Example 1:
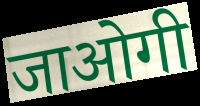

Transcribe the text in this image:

जाओगी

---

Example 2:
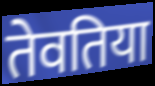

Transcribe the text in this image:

तेवतिया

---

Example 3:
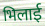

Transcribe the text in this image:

भिलाई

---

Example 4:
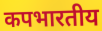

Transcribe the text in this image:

कपभारतीय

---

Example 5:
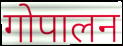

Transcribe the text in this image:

गोपालन